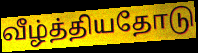
வீழ்த்தியதோடு